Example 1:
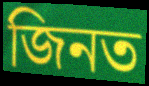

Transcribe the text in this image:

জিনত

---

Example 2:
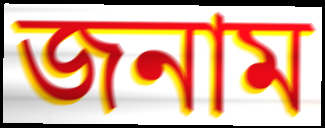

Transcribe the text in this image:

জনাম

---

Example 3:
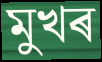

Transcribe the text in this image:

মুখৰ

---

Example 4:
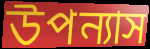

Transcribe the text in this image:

উপন্যাস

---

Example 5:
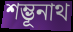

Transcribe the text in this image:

শম্ভূনাথ